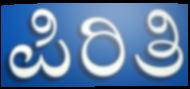
ಪಿರಿತಿ